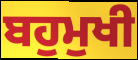
ਬਹੁਮੁਖੀ